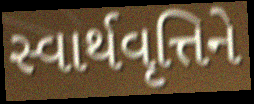
સ્વાર્થવૃત્તિને